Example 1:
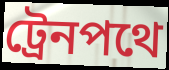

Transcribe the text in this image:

ট্রেনপথে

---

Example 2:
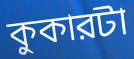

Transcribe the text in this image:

কুকারটা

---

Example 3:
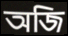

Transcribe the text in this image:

অজি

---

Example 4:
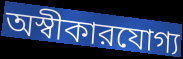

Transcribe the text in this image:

অস্বীকারযোগ্য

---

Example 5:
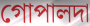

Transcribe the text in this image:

গোপালদা